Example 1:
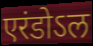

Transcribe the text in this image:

एरंडोऽल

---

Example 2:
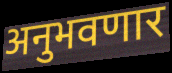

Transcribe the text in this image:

अनुभवणार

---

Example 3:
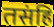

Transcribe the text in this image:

तसंहि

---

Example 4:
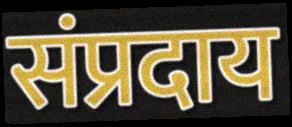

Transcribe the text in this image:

संप्रदाय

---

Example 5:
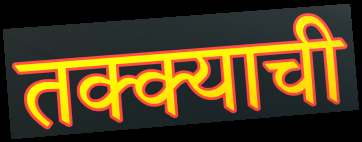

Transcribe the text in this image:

तक्क्याची